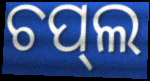
ଚପ୍‌ଲ